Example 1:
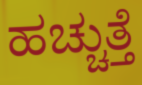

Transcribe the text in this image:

ಹಚ್ಚುತ್ತೆ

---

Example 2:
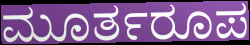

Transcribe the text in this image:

ಮೂರ್ತರೂಪ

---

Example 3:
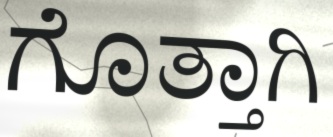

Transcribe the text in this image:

ಗೊತ್ತಾಗಿ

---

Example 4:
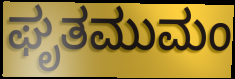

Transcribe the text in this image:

ಘೃತಮುಮಂ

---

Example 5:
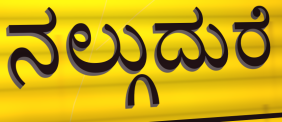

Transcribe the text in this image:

ನಲ್ಗುದುರೆ